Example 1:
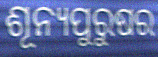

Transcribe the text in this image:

ଶୂନ୍ୟପୁରୁଷର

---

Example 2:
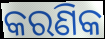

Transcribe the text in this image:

କରଣିକ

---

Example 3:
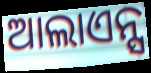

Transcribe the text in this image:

ଆଲାଏନ୍ସ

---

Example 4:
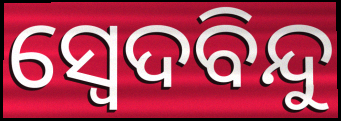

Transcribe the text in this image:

ସ୍ୱେଦବିନ୍ଦୁ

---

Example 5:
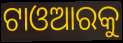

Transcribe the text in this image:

ଟାଓଆରକୁ